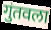
गुंतवला